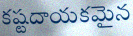
కష్టదాయకమైన